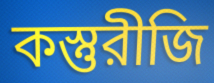
কস্তুরীজি